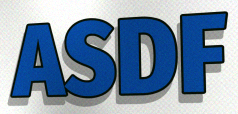
ASDF